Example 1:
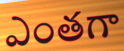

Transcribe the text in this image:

ఎంతగా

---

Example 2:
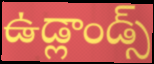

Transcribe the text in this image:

ఉడ్లాండ్స్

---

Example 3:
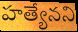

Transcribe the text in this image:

హత్యేనని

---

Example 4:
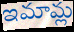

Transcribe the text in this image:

ఇమామ్ల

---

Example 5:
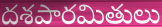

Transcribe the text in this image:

దశపారమితులు